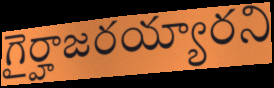
గైర్హాజరయ్యారని